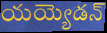
యయ్యెడన్